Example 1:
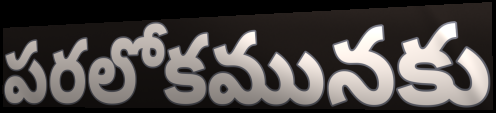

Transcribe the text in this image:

పరలోకమునకు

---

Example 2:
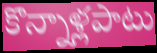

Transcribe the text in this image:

కొన్నాళ్లపాటు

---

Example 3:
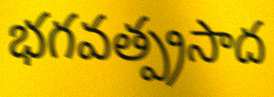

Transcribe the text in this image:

భగవత్ప్రసాద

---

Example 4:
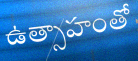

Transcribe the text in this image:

ఉత్సాహంతో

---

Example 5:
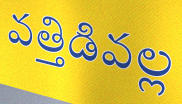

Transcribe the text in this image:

వత్తిడివల్ల